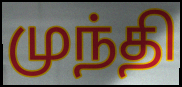
முந்தி